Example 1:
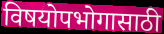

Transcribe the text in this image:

विषयोपभोगासाठी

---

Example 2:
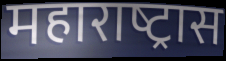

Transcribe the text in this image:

महाराष्ट्रास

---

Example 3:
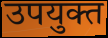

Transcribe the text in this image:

उपयुक्त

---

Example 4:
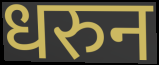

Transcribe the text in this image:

धरुन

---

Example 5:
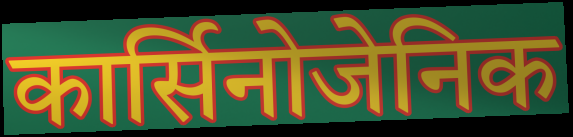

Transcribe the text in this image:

कार्सिनोजेनिक